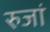
रुजां